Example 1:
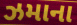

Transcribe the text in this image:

ઝમાના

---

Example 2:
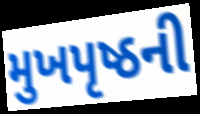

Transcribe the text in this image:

મુખપૃષ્ઠની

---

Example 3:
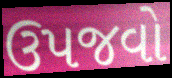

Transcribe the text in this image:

ઉપજવો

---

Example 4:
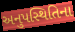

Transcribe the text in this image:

અનુપસ્થિતિના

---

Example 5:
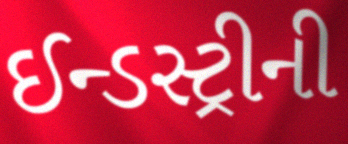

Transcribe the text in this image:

ઈન્ડસ્ટ્રીની